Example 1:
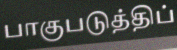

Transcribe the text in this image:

பாகுபடுத்திப்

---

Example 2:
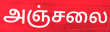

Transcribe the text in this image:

அஞ்சலை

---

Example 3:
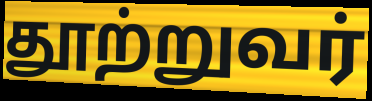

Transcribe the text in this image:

தூற்றுவர்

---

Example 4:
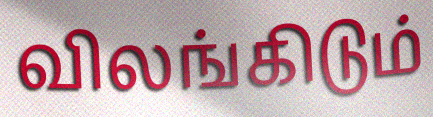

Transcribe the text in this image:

விலங்கிடும்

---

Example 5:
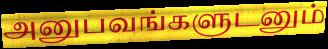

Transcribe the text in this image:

அனுபவங்களுடனும்